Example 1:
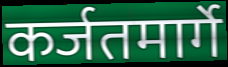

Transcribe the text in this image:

कर्जतमार्गे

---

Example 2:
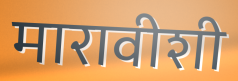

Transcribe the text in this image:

मारावीशी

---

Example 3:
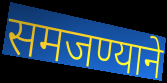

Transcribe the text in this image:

समजण्याने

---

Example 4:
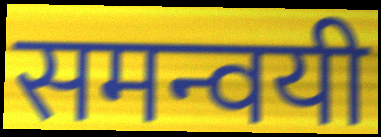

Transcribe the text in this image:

समन्वयी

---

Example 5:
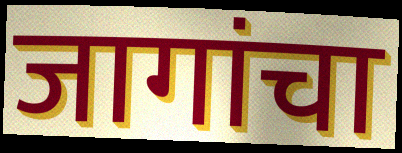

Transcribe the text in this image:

जागांचा